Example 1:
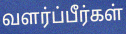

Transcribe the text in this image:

வளர்ப்பீர்கள்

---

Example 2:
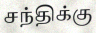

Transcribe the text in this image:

சந்திக்கு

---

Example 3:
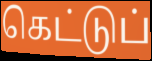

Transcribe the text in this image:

கெட்டுப்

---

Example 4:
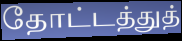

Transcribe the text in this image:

தோட்டத்துத்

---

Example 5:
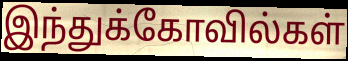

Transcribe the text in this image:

இந்துக்கோவில்கள்